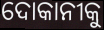
ଦୋକାନୀକୁ